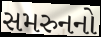
સમરુનનો